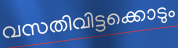
വസതിവിട്ടക്കൊടും